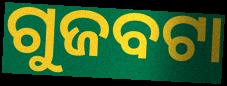
ଗୁଜବଟା